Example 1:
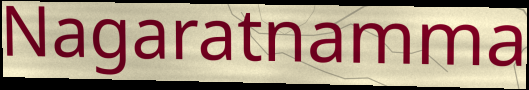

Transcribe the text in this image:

Nagaratnamma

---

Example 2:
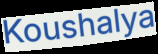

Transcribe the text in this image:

Koushalya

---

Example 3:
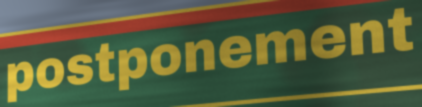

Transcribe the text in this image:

postponement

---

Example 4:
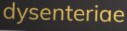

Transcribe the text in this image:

dysenteriae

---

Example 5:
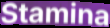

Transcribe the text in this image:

Stamina